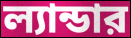
ল্যান্ডার